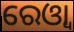
ରେଓ୍ବା